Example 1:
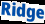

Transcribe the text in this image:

Ridge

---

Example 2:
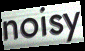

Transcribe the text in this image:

noisy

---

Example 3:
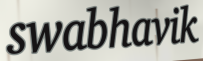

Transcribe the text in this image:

swabhavik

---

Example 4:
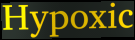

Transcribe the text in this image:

Hypoxic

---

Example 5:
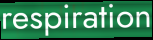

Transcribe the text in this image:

respiration